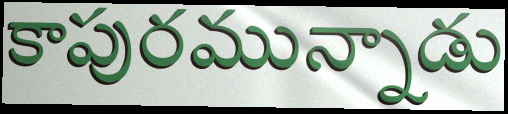
కాపురమున్నాడు